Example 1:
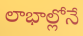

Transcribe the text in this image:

లాభాల్లోనే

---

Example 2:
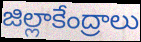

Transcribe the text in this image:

జిల్లాకేంద్రాలు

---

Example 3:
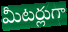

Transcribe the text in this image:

మీటర్లుగా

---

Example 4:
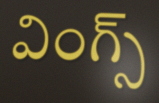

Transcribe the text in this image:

వింగ్స్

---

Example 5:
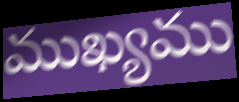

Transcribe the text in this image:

ముఖ్యము